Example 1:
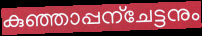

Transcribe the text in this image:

കുഞ്ഞാപ്പന്ചേട്ടനും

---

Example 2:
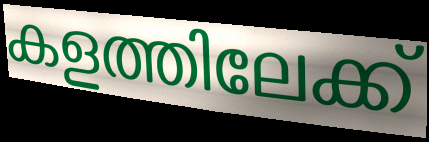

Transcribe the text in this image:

കളത്തിലേക്ക്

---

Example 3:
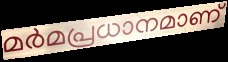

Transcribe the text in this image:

മർമപ്രധാനമാണ്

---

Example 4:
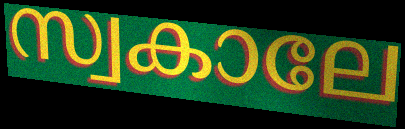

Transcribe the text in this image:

സ്വകാലേ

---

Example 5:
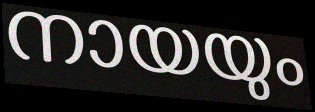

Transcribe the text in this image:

നായയും